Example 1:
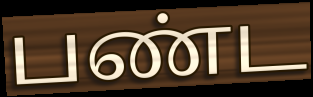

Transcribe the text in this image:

பண்ட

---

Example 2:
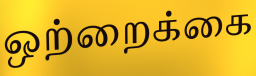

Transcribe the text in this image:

ஒற்றைக்கை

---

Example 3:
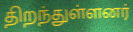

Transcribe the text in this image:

திறந்துள்ளனர்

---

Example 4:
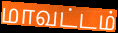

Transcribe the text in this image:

மாவட்டம்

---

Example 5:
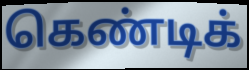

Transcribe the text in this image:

கெண்டிக்